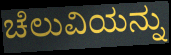
ಚೆಲುವಿಯನ್ನು